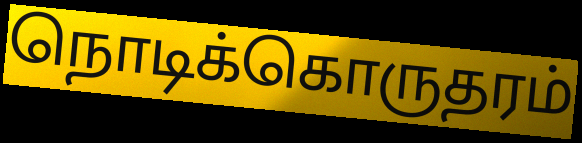
நொடிக்கொருதரம்